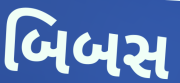
બિબસ